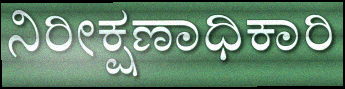
ನಿರೀಕ್ಷಣಾಧಿಕಾರಿ